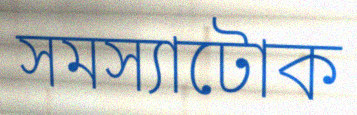
সমস্যাটোক